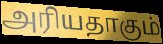
அரியதாகும்